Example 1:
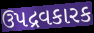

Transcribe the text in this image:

ઉપદ્રવકારક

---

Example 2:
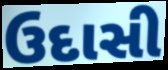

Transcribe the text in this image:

ઉદાસી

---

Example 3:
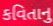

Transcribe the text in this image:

કવિતાનુ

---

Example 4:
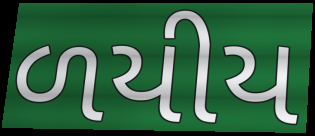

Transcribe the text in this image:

ળયીય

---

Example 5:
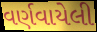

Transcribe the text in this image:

વર્ણવાયેલી